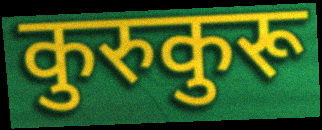
कुरुकुरू